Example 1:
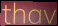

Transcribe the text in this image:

thav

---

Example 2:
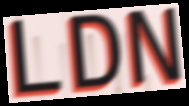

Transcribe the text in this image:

LDN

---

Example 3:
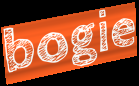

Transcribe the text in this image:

bogie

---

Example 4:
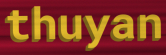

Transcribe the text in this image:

thuyan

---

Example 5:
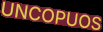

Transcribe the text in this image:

UNCOPUOS